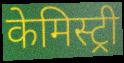
केमिस्ट्री